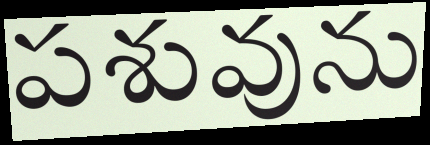
పశువును